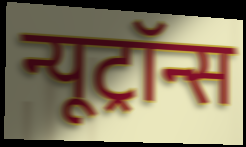
न्यूट्रॉन्स